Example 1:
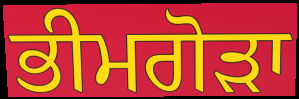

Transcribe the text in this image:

ਭੀਮਗੋੜਾ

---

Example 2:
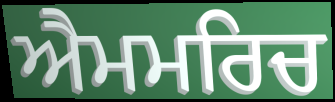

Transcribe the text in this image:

ਐਮਮਰਿਚ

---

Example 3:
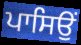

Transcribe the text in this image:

ਪਾਸਿਉਂ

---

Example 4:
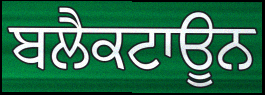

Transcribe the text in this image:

ਬਲੈਕਟਾਊਨ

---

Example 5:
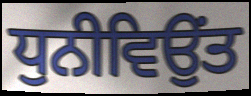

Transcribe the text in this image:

ਧੁਨੀਵਿਉਂਤ